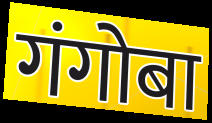
गंगोबा